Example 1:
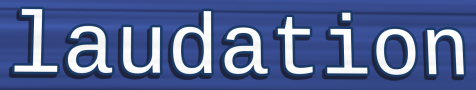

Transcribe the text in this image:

laudation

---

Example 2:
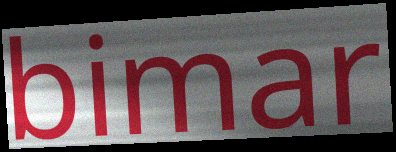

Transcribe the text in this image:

bimar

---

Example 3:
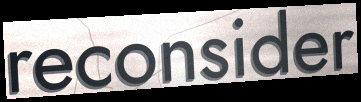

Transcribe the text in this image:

reconsider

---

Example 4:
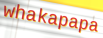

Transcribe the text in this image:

whakapapa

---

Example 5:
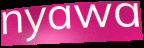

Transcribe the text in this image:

nyawa